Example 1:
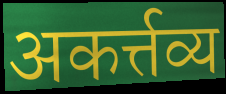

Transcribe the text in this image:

अकर्त्तव्य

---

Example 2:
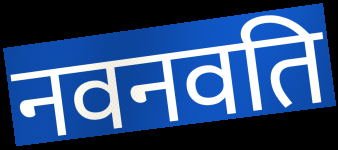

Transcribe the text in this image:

नवनवति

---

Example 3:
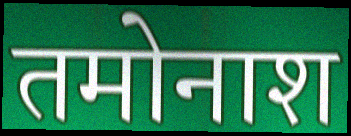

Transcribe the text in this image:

तमोनाश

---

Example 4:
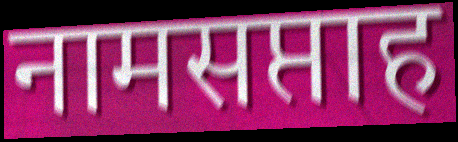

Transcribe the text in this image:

नामसप्ताह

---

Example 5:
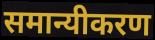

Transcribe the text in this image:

समान्यीकरण